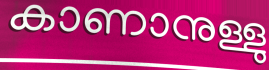
കാണാനുള്ളു